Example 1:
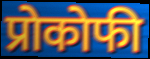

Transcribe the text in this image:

प्रोकोफी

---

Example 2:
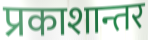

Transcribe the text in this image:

प्रकाशान्तर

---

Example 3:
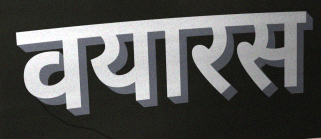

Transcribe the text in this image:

वयारस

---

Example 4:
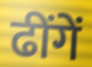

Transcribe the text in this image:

ढींगें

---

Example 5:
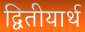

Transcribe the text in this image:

द्वितीयार्थ